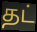
தட்